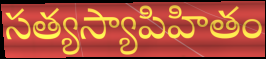
సత్యస్యాపిహితం